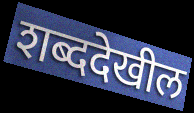
शब्ददेखील